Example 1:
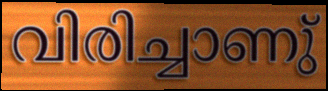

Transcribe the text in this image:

വിരിച്ചാണു്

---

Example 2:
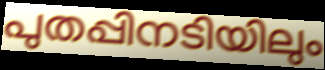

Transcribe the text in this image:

പുതപ്പിനടിയിലും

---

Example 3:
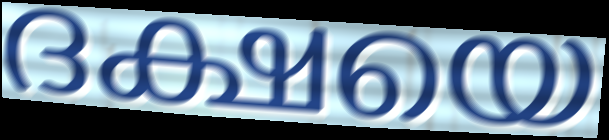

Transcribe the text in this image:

ദക്ഷയെ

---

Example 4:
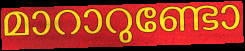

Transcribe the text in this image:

മാറാറുണ്ടോ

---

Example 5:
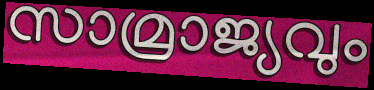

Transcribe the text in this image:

സാമ്രാജ്യവും